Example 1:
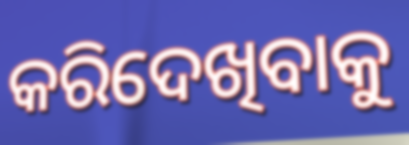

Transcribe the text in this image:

କରିଦେଖିବାକୁ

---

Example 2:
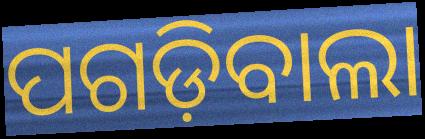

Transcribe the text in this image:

ପଗଡ଼ିବାଲା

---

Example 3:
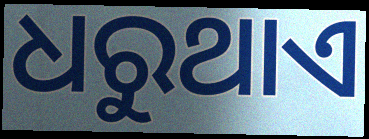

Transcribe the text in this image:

ଧରୁଥାଏ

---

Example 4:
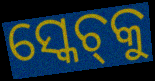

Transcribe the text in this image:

ସ୍କେଚ୍‌କୁ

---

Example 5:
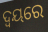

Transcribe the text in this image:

ଦ୍ୱୟରେ